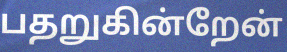
பதறுகின்றேன்